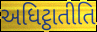
અધિટ્ઠાતીતિ